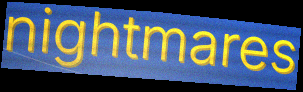
nightmares